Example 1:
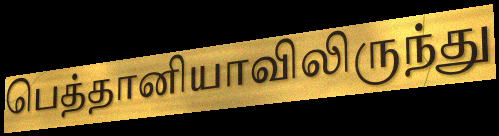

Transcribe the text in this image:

பெத்தானியாவிலிருந்து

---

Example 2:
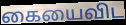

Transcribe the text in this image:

கையைவிட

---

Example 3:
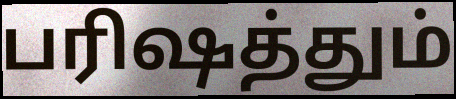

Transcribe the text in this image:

பரிஷத்தும்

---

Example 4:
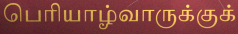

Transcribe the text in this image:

பெரியாழ்வாருக்குக்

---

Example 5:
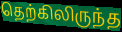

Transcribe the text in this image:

தெற்கிலிருந்த